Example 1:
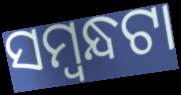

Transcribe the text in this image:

ସମ୍ବନ୍ଧଟା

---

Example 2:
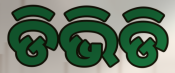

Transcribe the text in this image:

ଡିଭିଡି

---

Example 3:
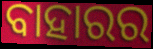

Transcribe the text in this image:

ବାହାରର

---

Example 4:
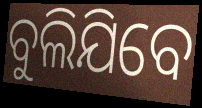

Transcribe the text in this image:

ବୁଲିଯିବେ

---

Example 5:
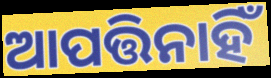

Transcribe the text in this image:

ଆପତ୍ତିନାହିଁ